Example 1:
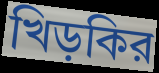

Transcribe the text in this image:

খিড়কির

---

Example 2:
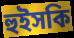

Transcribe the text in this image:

হুইসকি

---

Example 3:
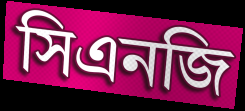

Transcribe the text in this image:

সিএনজি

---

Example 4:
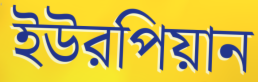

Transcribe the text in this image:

ইউরপিয়ান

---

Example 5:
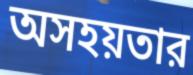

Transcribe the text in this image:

অসহয়তার